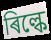
ৰিল্কে